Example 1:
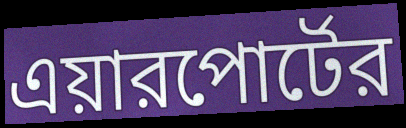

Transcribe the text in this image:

এয়ারপোর্টের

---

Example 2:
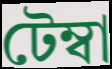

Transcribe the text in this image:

টেম্বা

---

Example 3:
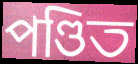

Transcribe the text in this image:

পণ্ডিত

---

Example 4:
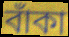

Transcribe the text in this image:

বাঁকা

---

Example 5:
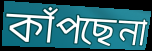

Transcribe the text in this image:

কাঁপছেনা